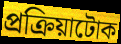
প্ৰক্ৰিয়াটোক